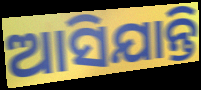
ଆସିଯାନ୍ତି